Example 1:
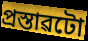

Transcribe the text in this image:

প্ৰস্তাৱটো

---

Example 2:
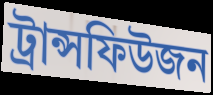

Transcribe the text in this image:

ট্ৰান্সফিউজন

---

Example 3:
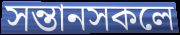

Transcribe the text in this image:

সন্তানসকলে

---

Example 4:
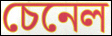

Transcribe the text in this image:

চেনেল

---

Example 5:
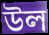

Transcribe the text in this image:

উল